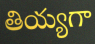
తియ్యగా